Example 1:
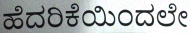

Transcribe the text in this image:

ಹೆದರಿಕೆಯಿಂದಲೇ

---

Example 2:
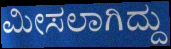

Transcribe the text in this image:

ಮೀಸಲಾಗಿದ್ದು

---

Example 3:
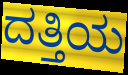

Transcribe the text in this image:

ದತ್ತಿಯ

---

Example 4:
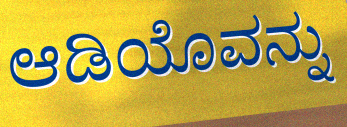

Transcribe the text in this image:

ಆಡಿಯೊವನ್ನು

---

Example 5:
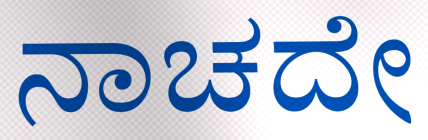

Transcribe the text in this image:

ನಾಚದೇ